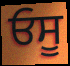
ਓਸੂ